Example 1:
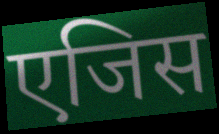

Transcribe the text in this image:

एजिस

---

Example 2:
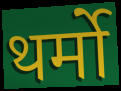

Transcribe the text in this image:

थर्मो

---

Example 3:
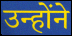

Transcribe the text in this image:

उन्‍होंने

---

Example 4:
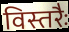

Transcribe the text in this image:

विस्तरैः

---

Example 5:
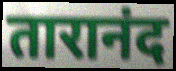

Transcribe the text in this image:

तारानंद